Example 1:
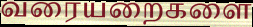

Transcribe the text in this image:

வரையறைகளை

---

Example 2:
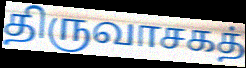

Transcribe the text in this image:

திருவாசகத்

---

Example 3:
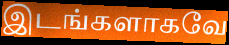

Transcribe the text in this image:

இடங்களாகவே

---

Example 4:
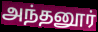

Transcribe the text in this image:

அந்தனூர்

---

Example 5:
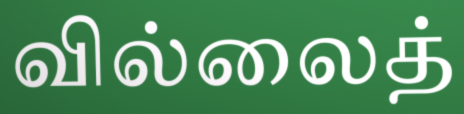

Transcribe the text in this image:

வில்லைத்